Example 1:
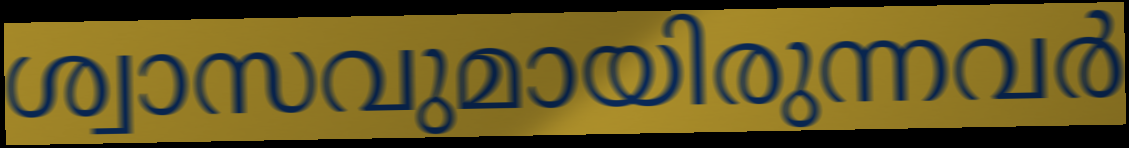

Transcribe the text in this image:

ശ്വാസവുമായിരുന്നവർ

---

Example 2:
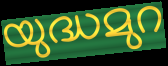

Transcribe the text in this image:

യുദ്ധമുറ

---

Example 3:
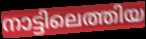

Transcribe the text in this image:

നാട്ടിലെത്തിയ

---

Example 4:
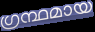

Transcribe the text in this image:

ഗ്രന്ഥമായ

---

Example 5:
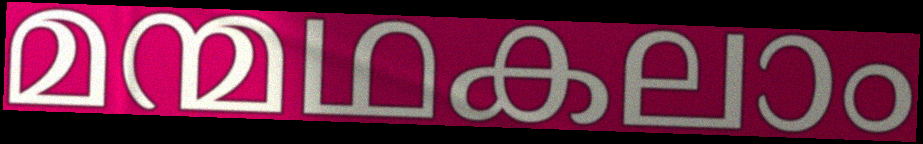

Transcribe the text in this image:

മന്മഥകലാം